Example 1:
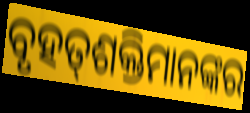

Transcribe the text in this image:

ବୃହତ୍‍ଶକ୍ତିମାନଙ୍କର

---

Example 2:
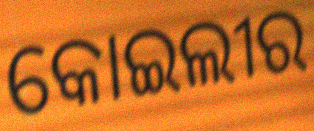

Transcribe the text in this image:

କୋଇଲୀର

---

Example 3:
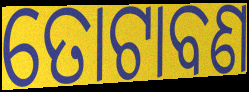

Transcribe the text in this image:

ତୋଟାବଣ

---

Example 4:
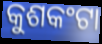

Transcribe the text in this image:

କୁଶକଂଟା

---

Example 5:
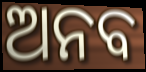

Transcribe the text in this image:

ଅନବ